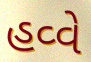
હવ્વે